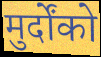
मुर्दोंको